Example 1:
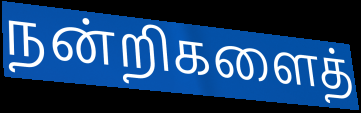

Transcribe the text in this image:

நன்றிகளைத்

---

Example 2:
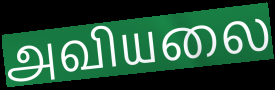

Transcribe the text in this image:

அவியலை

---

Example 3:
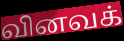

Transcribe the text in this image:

வினவக்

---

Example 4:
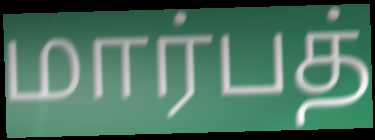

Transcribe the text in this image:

மார்பத்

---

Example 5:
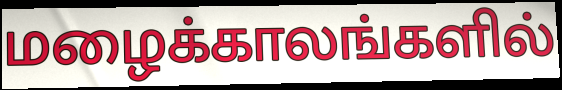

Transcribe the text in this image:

மழைக்காலங்களில்